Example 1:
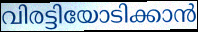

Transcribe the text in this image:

വിരട്ടിയോടിക്കാൻ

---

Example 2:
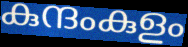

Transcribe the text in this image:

കുന്ദംകുളം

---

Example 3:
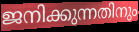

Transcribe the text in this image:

ജനിക്കുന്നതിനും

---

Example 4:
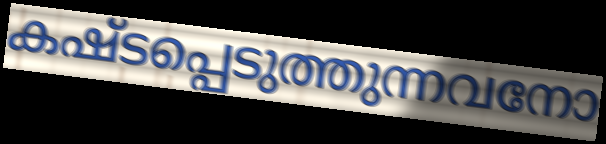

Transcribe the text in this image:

കഷ്ടപ്പെടുത്തുന്നവനോ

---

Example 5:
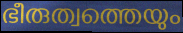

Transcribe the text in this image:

ഭീരുത്വത്തെയും